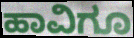
ಹಾವಿಗೂ